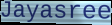
Jayasree